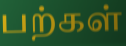
பற்கள்